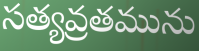
సత్యవ్రతమును